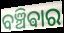
ବଞ୍ଚିଵାର